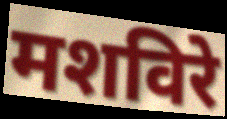
मशविरे